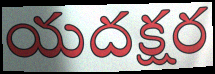
యదక్షర